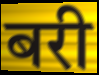
बरी